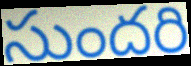
సుందరి